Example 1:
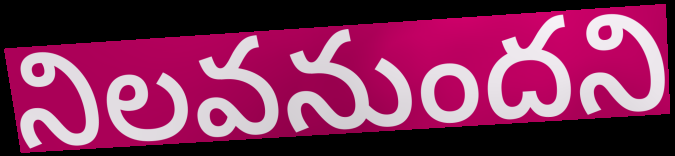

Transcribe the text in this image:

నిలవనుందని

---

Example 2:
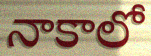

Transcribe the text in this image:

నాకాలో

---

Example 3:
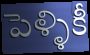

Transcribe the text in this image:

పెళ్ళికీ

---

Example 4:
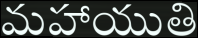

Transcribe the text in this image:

మహాయుతి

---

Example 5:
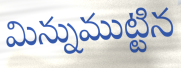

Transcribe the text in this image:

మిన్నుముట్టిన